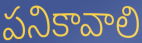
పనికావాలి